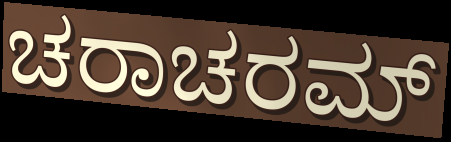
ಚರಾಚರಮ್